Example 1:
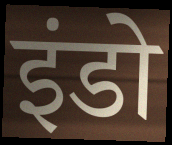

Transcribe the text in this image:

इंडो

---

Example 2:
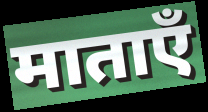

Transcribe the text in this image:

माताएँ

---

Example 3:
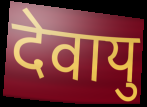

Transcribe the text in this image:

देवायु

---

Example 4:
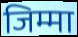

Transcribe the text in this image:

जिम्‍मा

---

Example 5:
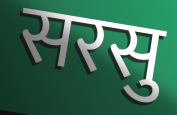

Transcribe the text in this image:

सरसु